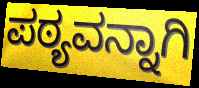
ಪಠ್ಯವನ್ನಾಗಿ